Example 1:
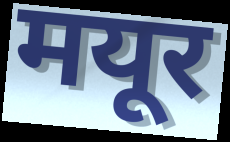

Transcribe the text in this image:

मयूर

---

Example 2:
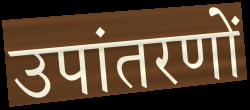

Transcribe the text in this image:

उपांतरणों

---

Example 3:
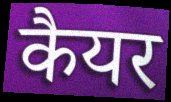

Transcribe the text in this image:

कैयर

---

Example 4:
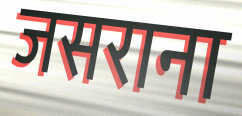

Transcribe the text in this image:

जसराना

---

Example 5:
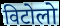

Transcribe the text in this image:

विटोलो